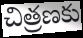
చిత్రణకు